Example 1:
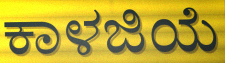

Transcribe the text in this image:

ಕಾಳಜಿಯೆ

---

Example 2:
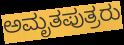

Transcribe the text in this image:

ಅಮೃತಪುತ್ರರು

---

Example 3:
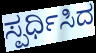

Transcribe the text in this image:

ಸ್ಪರ್ಧಿಸಿದ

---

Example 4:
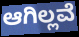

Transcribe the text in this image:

ಆಗಿಲ್ಲವೆ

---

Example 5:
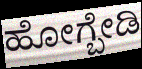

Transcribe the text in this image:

ಹೋಗ್ಬೇಡಿ